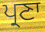
ਪ੍ਰਣਾ